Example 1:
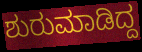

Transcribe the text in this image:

ಶುರುಮಾಡಿದ್ದ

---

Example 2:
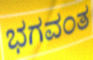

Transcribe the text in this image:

ಭಗವಂತ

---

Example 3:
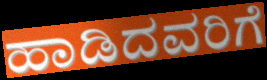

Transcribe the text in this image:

ಹಾಡಿದವರಿಗೆ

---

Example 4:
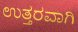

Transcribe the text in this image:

ಉತ್ತರವಾಗಿ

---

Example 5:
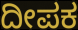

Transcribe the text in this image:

ದೀಪಕ